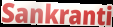
Sankranti